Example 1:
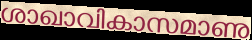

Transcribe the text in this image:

ശാഖാവികാസമാണു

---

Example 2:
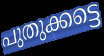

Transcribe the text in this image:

പുതുക്കട്ടെ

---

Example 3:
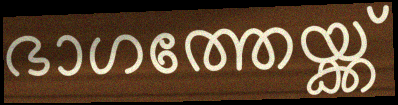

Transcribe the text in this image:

ഭാഗത്തേയ്ക്ക്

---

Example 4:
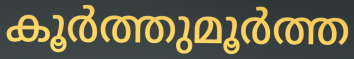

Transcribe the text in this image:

കൂർത്തുമൂർത്ത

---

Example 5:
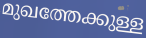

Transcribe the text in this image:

മുഖത്തേക്കുള്ള